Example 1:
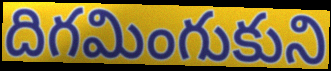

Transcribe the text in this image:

దిగమింగుకుని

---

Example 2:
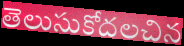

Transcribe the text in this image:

తెలుసుకోదలచిన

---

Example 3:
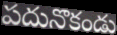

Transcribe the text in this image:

పదునొకండు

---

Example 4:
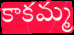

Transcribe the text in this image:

కాకమ్మ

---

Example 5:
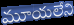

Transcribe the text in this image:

మూయలేని